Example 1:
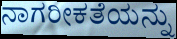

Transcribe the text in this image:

ನಾಗರೀಕತೆಯನ್ನು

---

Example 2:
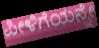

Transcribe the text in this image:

ಪೀಳಿಗೆಯನ್ನೇ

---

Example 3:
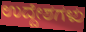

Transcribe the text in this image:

ಉದ್ದೇಶಗಳು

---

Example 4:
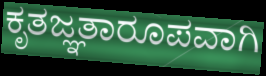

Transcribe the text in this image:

ಕೃತಜ್ಞತಾರೂಪವಾಗಿ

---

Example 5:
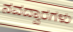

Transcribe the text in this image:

ನವದ್ವಾರಗಳು